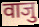
वाजु